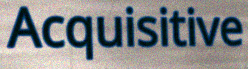
Acquisitive